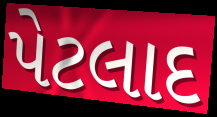
પેટલાદ